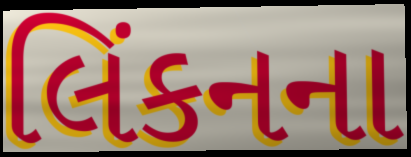
લિંકનના